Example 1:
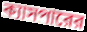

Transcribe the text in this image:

ক্যাসপারের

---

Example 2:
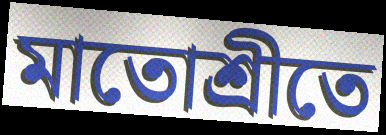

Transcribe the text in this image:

মাতোশ্রীতে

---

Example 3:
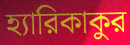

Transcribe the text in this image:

হ্যারিকাকুর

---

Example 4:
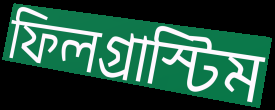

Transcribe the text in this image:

ফিলগ্রাস্টিম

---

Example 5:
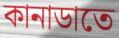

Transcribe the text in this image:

কানাডাতে